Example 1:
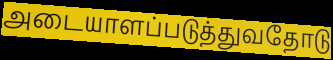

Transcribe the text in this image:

அடையாளப்படுத்துவதோடு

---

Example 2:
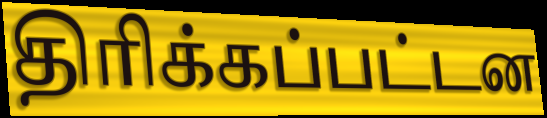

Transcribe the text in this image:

திரிக்கப்பட்டன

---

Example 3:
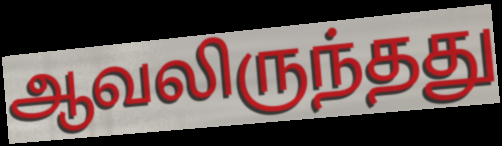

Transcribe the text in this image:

ஆவலிருந்தது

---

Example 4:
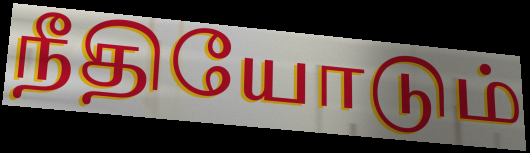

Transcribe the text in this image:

நீதியோடும்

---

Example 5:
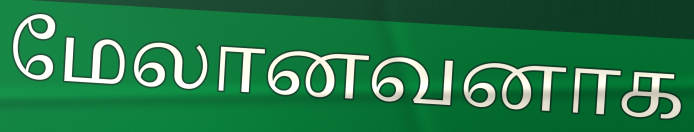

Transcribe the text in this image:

மேலானவனாக